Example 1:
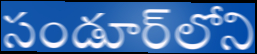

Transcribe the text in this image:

సండూర్‌లోని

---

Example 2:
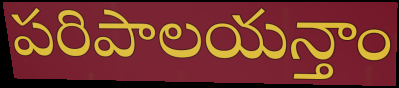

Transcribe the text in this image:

పరిపాలయన్తాం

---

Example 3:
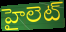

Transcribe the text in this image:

హైలెట్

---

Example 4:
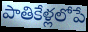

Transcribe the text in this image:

పాతికేళ్లలోపే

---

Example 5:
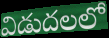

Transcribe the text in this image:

విడుదలలో